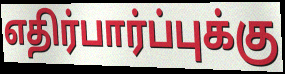
எதிர்பார்ப்புக்கு